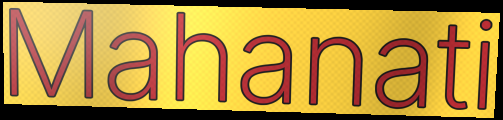
Mahanati